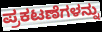
ಪ್ರಕಟಣೆಗಳನ್ನು